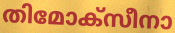
തിമോക്സീനാ